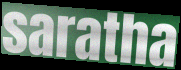
saratha